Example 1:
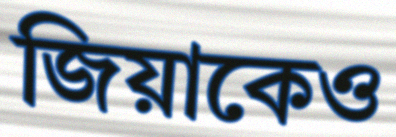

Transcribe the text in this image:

জিয়াকেও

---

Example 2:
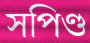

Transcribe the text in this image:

সপিণ্ড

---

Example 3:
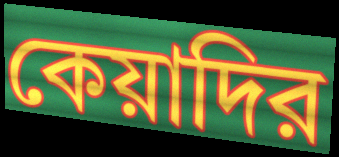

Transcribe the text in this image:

কেয়াদির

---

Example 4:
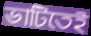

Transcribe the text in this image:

ভাটিতেই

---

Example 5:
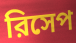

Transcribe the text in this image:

রিসেপ